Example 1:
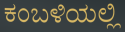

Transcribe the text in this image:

ಕಂಬಳಿಯಲ್ಲಿ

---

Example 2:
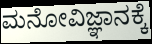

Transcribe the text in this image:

ಮನೋವಿಜ್ಞಾನಕ್ಕೆ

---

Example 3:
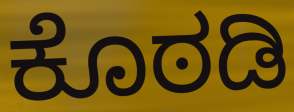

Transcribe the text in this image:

ಕೊಠಡಿ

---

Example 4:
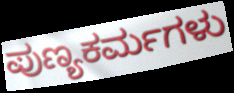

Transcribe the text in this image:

ಪುಣ್ಯಕರ್ಮಗಳು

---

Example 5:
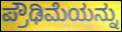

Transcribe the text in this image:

ಪ್ರೌಢಿಮೆಯನ್ನು